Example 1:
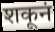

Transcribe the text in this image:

शकूनं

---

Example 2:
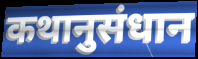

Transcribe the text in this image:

कथानुसंधान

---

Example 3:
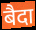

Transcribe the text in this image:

बैदा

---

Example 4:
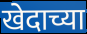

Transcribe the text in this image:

खेदाच्या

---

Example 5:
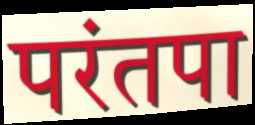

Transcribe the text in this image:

परंतपा